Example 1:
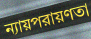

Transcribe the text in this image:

ন্যায়পরায়ণতা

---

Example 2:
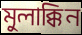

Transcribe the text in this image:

মুলাক্কিন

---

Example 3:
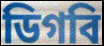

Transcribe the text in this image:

ডিগবি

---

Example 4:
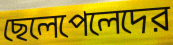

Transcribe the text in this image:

ছেলেপেলেদের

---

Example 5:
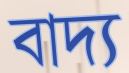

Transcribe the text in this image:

বাদ্য